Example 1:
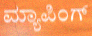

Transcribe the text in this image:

ಮ್ಯಾಪಿಂಗ್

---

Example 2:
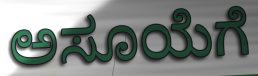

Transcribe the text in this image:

ಅಸೂಯೆಗೆ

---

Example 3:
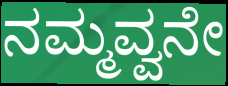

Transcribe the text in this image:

ನಮ್ಮವ್ವನೇ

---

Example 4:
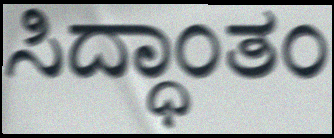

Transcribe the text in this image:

ಸಿದ್ಧಾಂತಂ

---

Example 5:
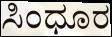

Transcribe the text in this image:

ಸಿಂಧೂರ